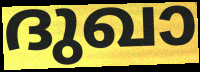
ദുഖാ